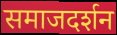
समाजदर्शन